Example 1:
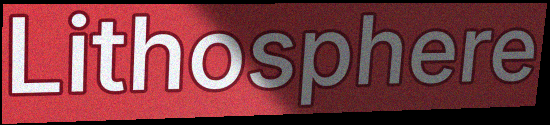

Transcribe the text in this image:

Lithosphere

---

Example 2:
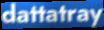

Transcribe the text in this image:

dattatray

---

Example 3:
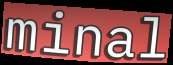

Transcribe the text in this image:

minal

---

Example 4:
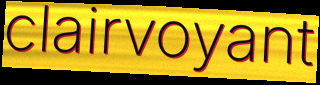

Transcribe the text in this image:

clairvoyant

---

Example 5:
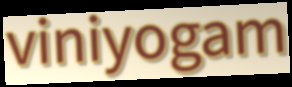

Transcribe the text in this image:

viniyogam